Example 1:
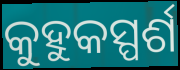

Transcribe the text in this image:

କୁହୁକସ୍ପର୍ଶ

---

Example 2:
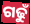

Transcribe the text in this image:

ଗଢୁଁ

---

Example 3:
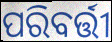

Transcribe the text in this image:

ପରିବର୍ତ୍ତୀ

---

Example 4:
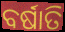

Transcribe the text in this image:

ବର୍ଷାତି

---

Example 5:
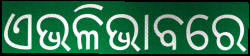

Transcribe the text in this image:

ଏଭଳିଭାବରେ